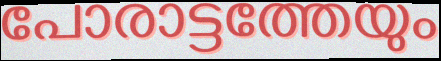
പോരാട്ടത്തേയും